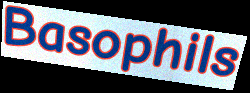
Basophils